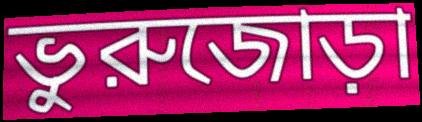
ভুরুজোড়া